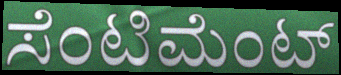
ಸೆಂಟಿಮೆಂಟ್